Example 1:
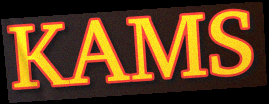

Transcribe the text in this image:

KAMS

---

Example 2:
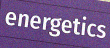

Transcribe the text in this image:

energetics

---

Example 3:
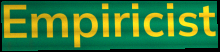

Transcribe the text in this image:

Empiricist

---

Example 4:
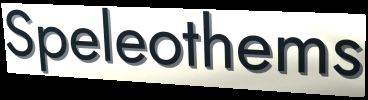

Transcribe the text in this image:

Speleothems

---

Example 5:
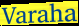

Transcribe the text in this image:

Varaha